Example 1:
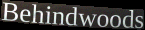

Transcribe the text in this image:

Behindwoods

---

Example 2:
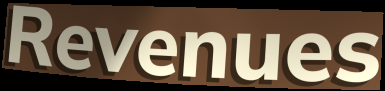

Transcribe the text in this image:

Revenues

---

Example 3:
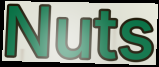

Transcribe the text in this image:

Nuts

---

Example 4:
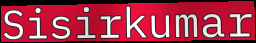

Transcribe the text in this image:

Sisirkumar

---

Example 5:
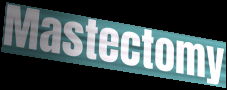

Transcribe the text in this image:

Mastectomy